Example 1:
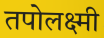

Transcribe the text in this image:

तपोलक्ष्मी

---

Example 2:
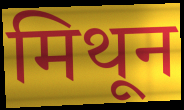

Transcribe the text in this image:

मिथून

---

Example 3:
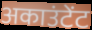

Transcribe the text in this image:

अकाउंटेंट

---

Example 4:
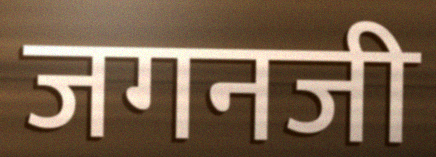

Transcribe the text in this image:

जगनजी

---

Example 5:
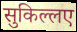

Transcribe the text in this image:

सुकिल्लए